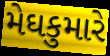
મેઘકુમારે